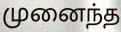
முனைந்த